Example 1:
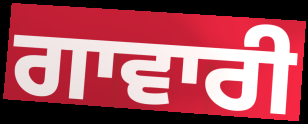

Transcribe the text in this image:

ਗਾਵਾਰੀ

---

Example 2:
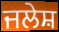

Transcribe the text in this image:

ਜਲੇਸ਼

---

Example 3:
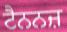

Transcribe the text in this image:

ਟੈਨਨਜ਼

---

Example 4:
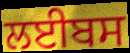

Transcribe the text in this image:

ਲਈਬਸ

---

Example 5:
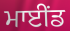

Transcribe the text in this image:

ਮਾਈਂਡ